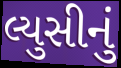
લ્યુસીનું